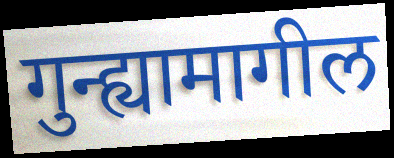
गुन्ह्यामागील